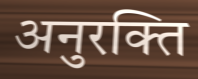
अनुरक्ति